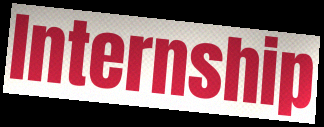
Internship